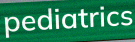
pediatrics